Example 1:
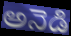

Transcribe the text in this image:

అనెడి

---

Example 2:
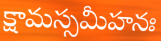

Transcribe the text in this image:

క్షామస్సమీహనః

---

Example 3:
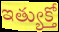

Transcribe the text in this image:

ఇత్యుక్తో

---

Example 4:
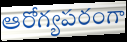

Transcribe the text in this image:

ఆరోగ్యపరంగా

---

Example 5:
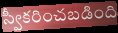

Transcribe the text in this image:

స్వీకరించబడింది